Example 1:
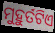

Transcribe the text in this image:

ମୁହୁର୍ତଟିଏ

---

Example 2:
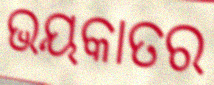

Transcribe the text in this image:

ଭୟକାତର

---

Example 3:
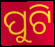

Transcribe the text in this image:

ପୁଟି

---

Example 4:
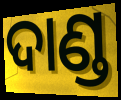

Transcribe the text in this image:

ଦାଣ୍ଡ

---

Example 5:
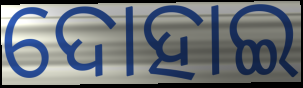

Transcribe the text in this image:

ଦୋହାଇ